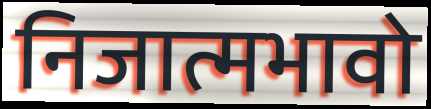
निजात्मभावो